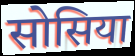
सोसिया